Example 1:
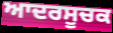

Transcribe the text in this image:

ਆਦਰਸੂਚਕ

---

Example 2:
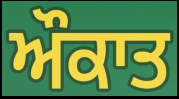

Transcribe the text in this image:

ਔਕਾਤ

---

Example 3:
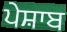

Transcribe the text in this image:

ਪੇਸ਼ਾਬ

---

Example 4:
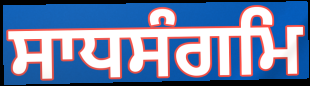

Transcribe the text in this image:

ਸਾਧਸੰਗਮਿ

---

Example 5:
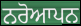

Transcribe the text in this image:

ਨਰੋਆਪਨ